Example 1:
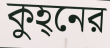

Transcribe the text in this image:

কুহ্‌নের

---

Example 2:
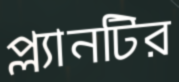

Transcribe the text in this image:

প্ল্যানটির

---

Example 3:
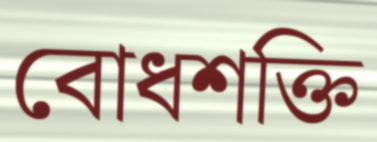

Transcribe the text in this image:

বোধশক্তি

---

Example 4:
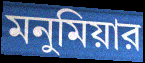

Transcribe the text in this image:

মনুমিয়ার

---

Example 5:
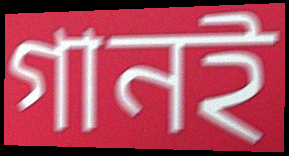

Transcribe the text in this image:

গানই